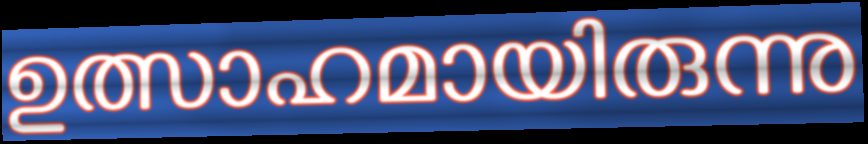
ഉത്സാഹമായിരുന്നു